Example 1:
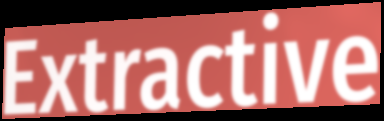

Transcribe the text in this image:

Extractive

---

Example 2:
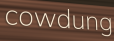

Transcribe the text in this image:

cowdung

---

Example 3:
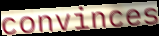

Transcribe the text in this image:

convinces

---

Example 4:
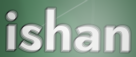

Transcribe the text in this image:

ishan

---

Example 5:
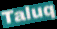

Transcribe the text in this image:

Taluq